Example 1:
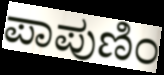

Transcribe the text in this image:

ಪಾಪುಣಿಂ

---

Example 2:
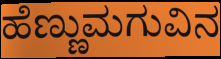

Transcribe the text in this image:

ಹೆಣ್ಣುಮಗುವಿನ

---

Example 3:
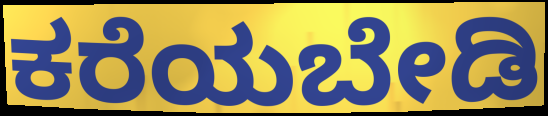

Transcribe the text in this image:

ಕರೆಯಬೇಡಿ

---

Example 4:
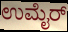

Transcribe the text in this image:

ಉಮೈರ್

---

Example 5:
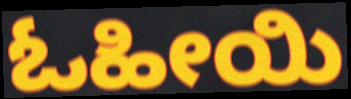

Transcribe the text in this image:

ಓಹೀಯಿ